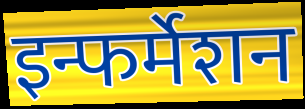
इन्फर्मेशन